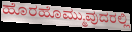
ಹೊರಹೊಮ್ಮುವುದರಲ್ಲಿ